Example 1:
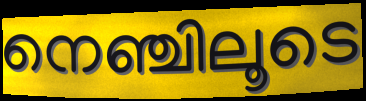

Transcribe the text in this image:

നെഞ്ചിലൂടെ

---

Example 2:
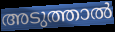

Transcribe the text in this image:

അടുത്താൽ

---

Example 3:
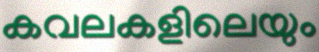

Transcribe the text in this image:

കവലകളിലെയും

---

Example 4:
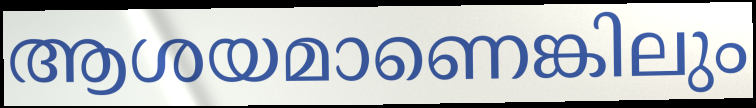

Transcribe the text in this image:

ആശയമാണെങ്കിലും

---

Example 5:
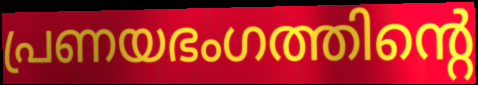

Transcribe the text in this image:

പ്രണയഭംഗത്തിന്റെ